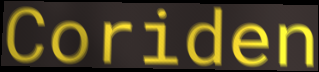
Coriden